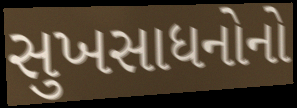
સુખસાધનોનો